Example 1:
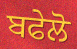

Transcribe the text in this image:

ਬਫੇਲੋ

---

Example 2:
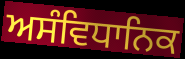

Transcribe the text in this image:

ਅਸੰਵਿਧਾਨਿਕ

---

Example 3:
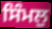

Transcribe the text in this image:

ਸਿੰਮਲੁ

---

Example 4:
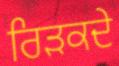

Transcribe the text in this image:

ਰਿੜਕਦੇ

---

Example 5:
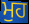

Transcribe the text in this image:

ਮੁਹ